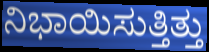
ನಿಭಾಯಿಸುತ್ತಿತ್ತು